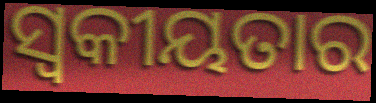
ସ୍ୱକୀୟତାର